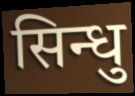
सिन्‍धु